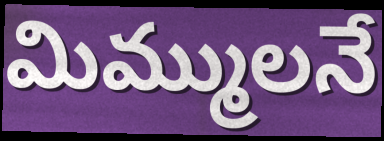
మిమ్ములనే